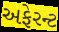
અફેરન્ટ